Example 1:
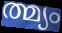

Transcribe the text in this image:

ത്മ്യം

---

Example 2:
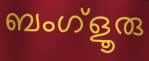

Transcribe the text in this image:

ബംഗ്ളൂരു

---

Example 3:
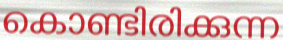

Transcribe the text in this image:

കൊണ്ടിരിക്കുന്ന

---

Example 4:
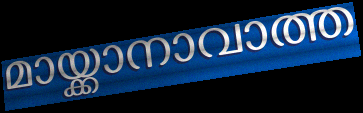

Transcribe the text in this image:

മായ്ക്കാനാവാത്ത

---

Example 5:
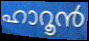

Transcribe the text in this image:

ഹാറൂൻ